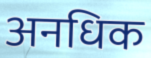
अनधिक